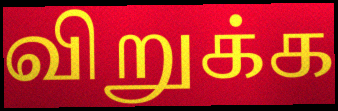
விறுக்க